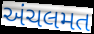
અંચલમત